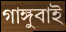
গাঙ্গুবাই